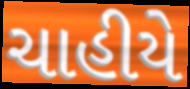
ચાહીયે